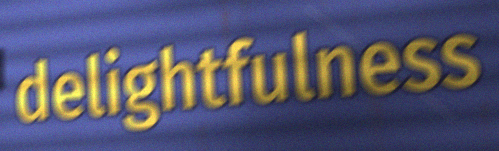
delightfulness